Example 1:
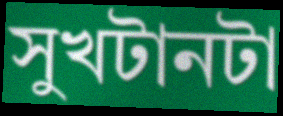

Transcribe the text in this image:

সুখটানটা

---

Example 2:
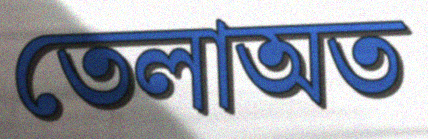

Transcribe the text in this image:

তেলাঅত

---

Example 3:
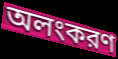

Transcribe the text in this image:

অলংকরণ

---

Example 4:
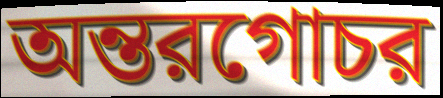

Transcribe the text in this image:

অন্তরগোচর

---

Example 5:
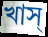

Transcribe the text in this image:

খাস্